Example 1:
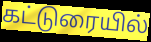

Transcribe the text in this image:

கட்டுரையில்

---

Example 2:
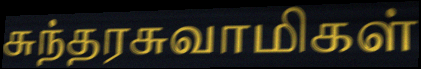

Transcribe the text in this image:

சுந்தரசுவாமிகள்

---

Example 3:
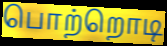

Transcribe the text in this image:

பொற்றொடி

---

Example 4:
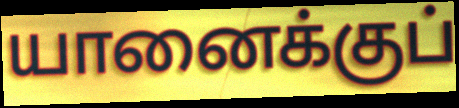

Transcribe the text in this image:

யானைக்குப்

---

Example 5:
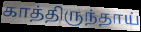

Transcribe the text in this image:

காத்திருந்தாய்